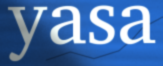
yasa